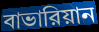
বাভারিয়ান